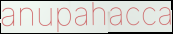
anupahacca